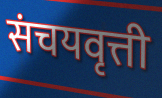
संचयवृत्ती